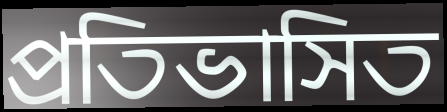
প্রতিভাসিত